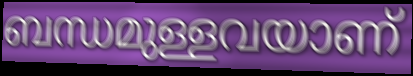
ബന്ധമുള്ളവയാണ്